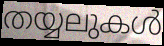
തയ്യലുകൾ